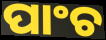
ପାଂଚ